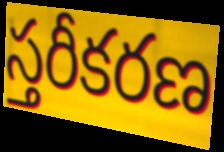
స్తరీకరణ